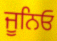
ਜੂਨਿਓ